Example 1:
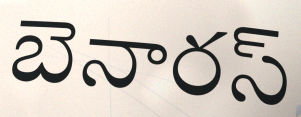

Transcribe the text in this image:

బెనారస్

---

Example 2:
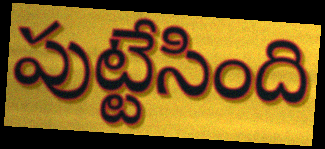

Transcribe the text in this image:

పుట్టేసింది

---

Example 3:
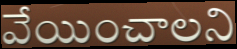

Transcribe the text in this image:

వేయించాలని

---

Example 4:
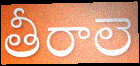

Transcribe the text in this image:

తీరాలె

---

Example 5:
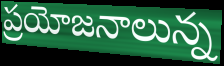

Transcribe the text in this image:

ప్రయోజనాలున్న